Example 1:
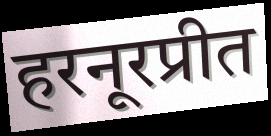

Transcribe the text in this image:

हरनूरप्रीत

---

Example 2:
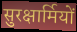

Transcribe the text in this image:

सुरक्षार्मियों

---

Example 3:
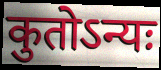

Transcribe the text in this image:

कुतोऽन्यः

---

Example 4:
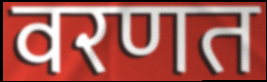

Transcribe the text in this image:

वरणत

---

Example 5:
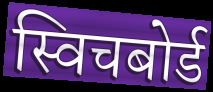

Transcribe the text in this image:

स्विचबोर्ड